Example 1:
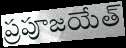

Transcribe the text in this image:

ప్రపూజయేత్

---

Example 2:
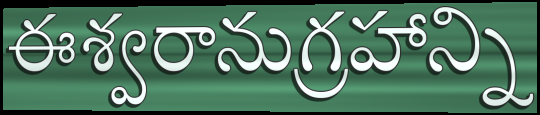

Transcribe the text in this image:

ఈశ్వరానుగ్రహాన్ని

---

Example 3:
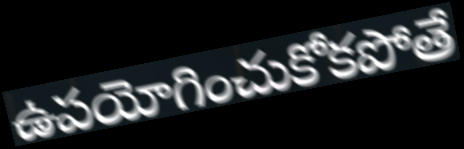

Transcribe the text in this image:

ఉపయోగించుకోకపోతే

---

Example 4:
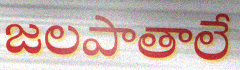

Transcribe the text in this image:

జలపాతాలే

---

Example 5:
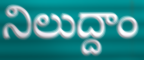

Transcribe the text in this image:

నిలుద్దాం